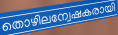
തൊഴിലന്വേഷകരായി